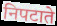
निपटाते